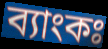
ব্যাংকঃ